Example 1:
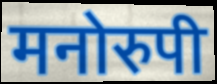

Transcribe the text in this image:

मनोरुपी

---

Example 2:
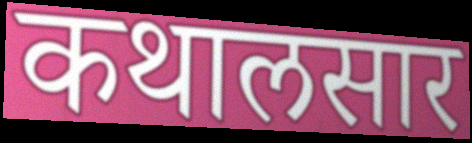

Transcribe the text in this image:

कथालसार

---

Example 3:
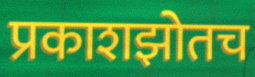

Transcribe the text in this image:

प्रकाशझोतच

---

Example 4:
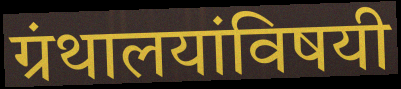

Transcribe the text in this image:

ग्रंथालयांविषयी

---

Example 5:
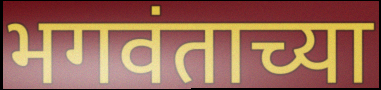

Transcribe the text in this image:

भगवंताच्या